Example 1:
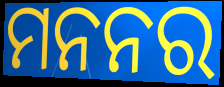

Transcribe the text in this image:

ମନନର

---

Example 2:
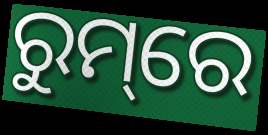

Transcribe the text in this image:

ରୁମ୍‌ରେ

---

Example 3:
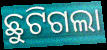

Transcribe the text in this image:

ଛୁଟିଗଲା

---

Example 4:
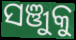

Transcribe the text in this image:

ସଞ୍ଜୁକୁ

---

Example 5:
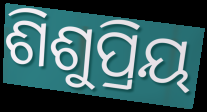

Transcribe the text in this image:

ଶିଶୁପ୍ରିୟ